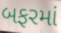
બફરમાં